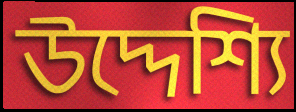
উদ্দেশ্যি